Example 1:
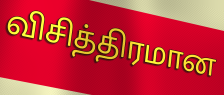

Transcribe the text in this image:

விசித்திரமான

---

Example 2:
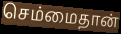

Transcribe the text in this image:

செம்மைதான்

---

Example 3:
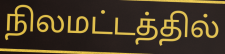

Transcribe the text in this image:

நிலமட்டத்தில்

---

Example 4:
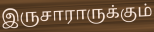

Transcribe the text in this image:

இருசாராருக்கும்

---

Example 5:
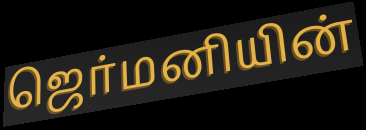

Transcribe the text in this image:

ஜெர்மனியின்